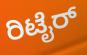
ರಿಟೈರ್